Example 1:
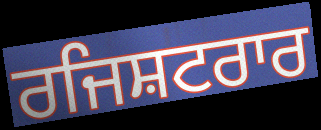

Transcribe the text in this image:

ਰਜਿਸ਼ਟਰਾਰ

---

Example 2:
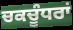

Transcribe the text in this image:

ਚਕਚੂੰਧਰਾਂ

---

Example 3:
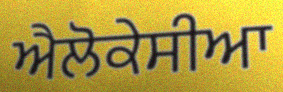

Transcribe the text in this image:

ਐਲੋਕੇਸੀਆ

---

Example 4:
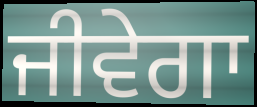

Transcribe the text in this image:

ਜੀਵੇਗਾ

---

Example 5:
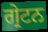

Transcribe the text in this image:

ਗ੍ਰੇਟਨ